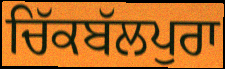
ਚਿੱਕਬੱਲਪੁਰਾ